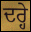
ਦਰ੍ਹੇ